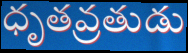
ధృతవ్రతుడు